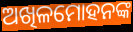
ଅଖିଳମୋହନଙ୍କ